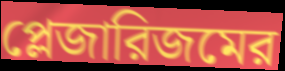
প্লেজারিজমের